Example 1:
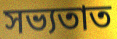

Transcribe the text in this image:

সভ্যতাত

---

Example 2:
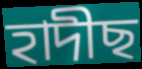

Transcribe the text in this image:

হাদীছ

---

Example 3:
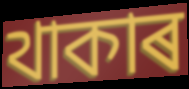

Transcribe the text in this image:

থাকাৰ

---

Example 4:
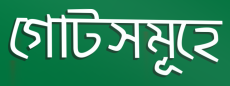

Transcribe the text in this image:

গোটসমূহে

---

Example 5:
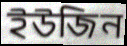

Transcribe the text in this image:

ইউজিন